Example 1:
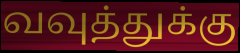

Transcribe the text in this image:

வவுத்துக்கு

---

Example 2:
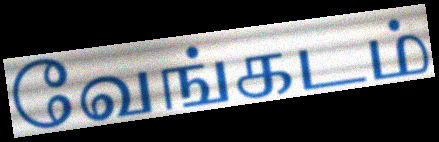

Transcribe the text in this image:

வேங்கடம்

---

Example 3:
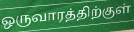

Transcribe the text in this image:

ஒருவாரத்திற்குள்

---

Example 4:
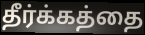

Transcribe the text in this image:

தீர்க்கத்தை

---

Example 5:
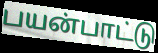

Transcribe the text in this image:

பயன்பாட்டு